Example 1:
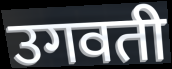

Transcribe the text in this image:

उगवती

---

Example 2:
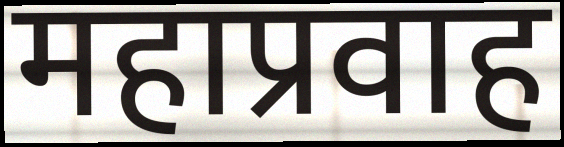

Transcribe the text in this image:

महाप्रवाह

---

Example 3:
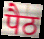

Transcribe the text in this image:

पैठ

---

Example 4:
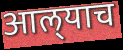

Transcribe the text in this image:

आल्याच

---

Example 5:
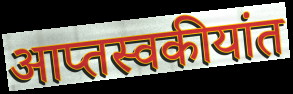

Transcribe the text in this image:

आप्तस्वकीयांत